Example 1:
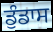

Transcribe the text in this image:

ਡੁੰਡਾਸ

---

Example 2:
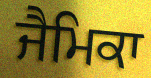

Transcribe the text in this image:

ਜੈਮਿਕਾ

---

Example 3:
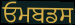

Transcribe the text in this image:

ਓਮਬਡਸ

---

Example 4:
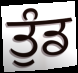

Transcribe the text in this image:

ਤੁੰਡ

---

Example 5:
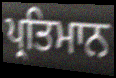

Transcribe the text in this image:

ਪ੍ਰਤਿਮਾਨ